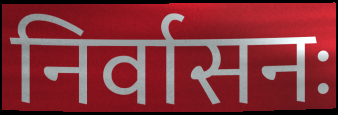
निर्वासनः